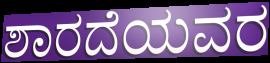
ಶಾರದೆಯವರ